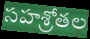
సహశ్రోతల